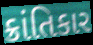
ક્રાંતિકાર